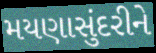
મયણાસુંદરીને